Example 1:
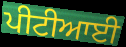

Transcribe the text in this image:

ਪੀਟੀਆਈ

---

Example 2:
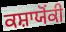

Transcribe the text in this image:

ਕਸ਼ਾਯੋਂਕੀ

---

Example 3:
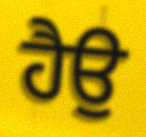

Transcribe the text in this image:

ਹੈਉ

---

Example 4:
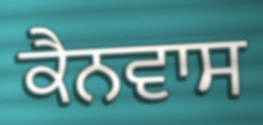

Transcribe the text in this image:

ਕੈਨਵਾਸ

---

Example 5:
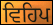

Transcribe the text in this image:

ਵਿਹਿਪ